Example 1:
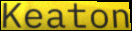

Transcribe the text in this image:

Keaton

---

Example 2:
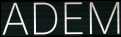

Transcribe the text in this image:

ADEM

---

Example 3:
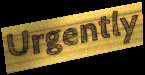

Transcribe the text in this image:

Urgently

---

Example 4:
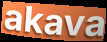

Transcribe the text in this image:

akava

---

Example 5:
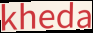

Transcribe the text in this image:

kheda